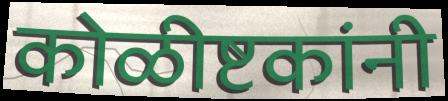
कोळीष्टकांनी